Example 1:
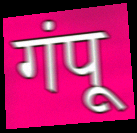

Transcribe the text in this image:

गंपू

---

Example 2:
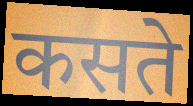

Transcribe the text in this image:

कसते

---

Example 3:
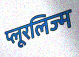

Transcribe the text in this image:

प्लूरलिज्म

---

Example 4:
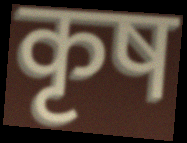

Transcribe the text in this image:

कृष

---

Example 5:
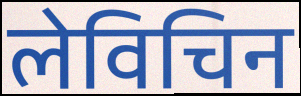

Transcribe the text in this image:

लेविचिन